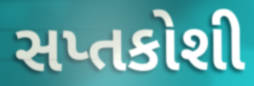
સપ્તકોશી